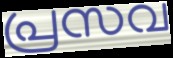
പ്രസവ